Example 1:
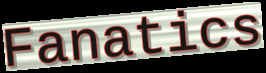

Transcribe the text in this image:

Fanatics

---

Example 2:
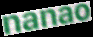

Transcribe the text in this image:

nanao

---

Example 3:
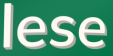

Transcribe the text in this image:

lese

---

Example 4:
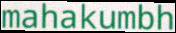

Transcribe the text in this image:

mahakumbh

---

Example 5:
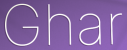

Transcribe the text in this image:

Ghar